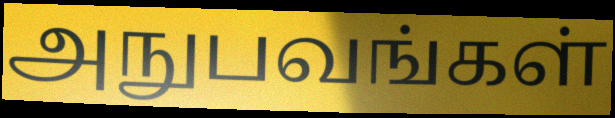
அநுபவங்கள்